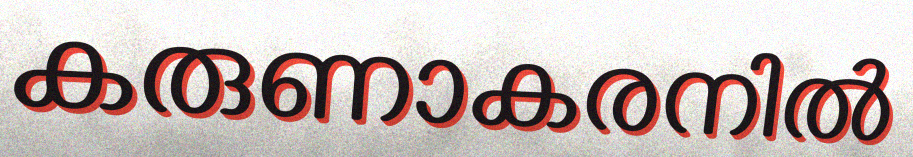
കരുണാകരനിൽ